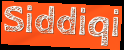
Siddiqi